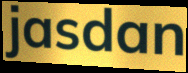
jasdan